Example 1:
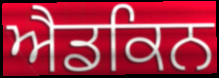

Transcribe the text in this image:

ਐਡਕਿਨ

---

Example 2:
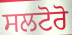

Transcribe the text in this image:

ਸਲਟੋਰੋ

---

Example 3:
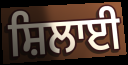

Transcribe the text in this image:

ਸ਼ਿਲਾਈ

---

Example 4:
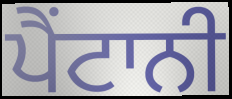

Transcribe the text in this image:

ਪੈਂਟਾਨੀ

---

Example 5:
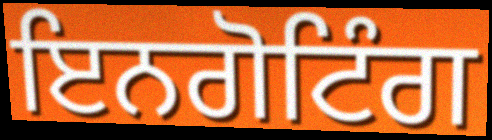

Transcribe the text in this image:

ਇਨਗੋਟਿੰਗ